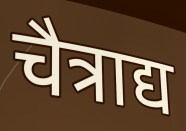
चैत्राद्य